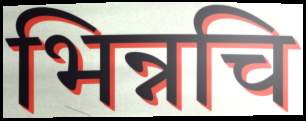
भिन्नचि